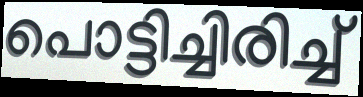
പൊട്ടിച്ചിരിച്ച്